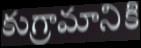
కుగ్రామానికి